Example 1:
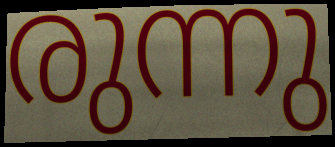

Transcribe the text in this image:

രുന്നു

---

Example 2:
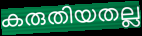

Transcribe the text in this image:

കരുതിയതല്ല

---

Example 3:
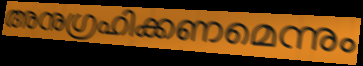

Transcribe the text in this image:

അനുഗ്രഹിക്കണമെന്നും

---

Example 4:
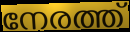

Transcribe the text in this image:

നേരത്ത്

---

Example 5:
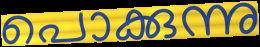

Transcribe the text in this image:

പൊക്കുന്നു